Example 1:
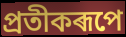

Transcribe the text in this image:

প্ৰতীকৰূপে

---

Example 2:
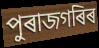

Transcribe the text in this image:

পুৰাজগৰিৰ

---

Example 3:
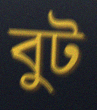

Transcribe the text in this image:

বুট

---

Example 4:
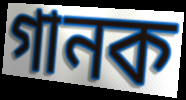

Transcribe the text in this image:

গানক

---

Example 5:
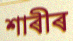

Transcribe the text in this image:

শাৰীৰ